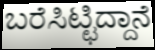
ಬರೆಸಿಟ್ಟಿದ್ದಾನೆ